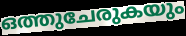
ഒത്തുചേരുകയും